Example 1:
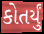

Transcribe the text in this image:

કોતર્યું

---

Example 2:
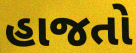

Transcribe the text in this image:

હાજતો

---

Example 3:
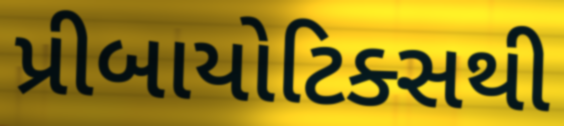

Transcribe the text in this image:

પ્રીબાયોટિક્સથી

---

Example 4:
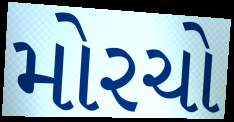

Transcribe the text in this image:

મોરચો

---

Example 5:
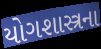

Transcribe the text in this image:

યોગશાસ્ત્રના